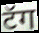
टॅग